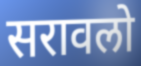
सरावलो